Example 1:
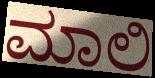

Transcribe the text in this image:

ಮಾಲಿ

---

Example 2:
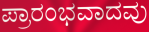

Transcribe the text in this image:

ಪ್ರಾರಂಭವಾದವು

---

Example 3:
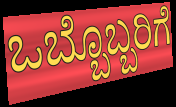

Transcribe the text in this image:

ಒಬ್ಬೊಬ್ಬರಿಗೆ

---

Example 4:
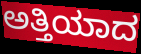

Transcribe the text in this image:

ಅತ್ತಿಯಾದ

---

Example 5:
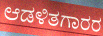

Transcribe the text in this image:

ಆಡಳಿತಗಾರರ